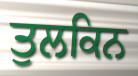
ਤੁਲਕਿਨ